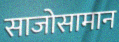
साजोसामान